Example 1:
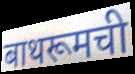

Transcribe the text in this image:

बाथरूमची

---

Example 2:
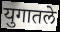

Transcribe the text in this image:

युगातले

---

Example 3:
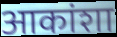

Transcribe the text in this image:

आकांशा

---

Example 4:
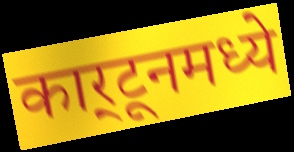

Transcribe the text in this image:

कार्टूनमध्ये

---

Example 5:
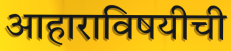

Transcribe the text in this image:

आहाराविषयीची